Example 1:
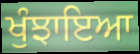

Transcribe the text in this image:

ਖੁੰਝਾਇਆ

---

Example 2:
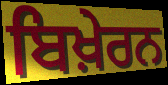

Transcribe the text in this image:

ਬਿਖ਼ੇਰਨ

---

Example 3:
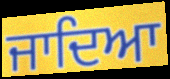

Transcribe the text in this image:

ਜਾਦਿਆ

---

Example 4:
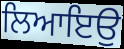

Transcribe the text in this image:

ਲਿਆਇਉ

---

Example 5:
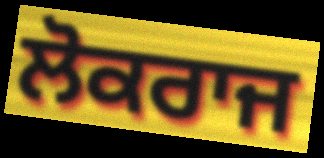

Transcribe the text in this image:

ਲੋਕਰਾਜ